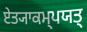
ਏਤ੍ਯਾਕਮ੍ਪਯਤ੍